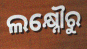
ଲକ୍ଷ୍ନୌରୁ